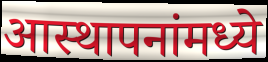
आस्थापनांमध्ये